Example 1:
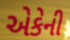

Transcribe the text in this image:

એકેની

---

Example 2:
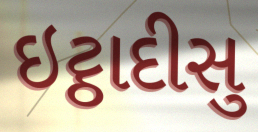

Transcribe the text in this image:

ઇટ્ઠાદીસુ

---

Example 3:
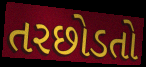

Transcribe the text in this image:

તરછોડતો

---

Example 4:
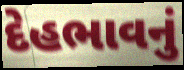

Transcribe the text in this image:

દેહભાવનું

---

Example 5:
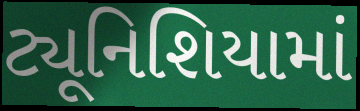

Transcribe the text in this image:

ટ્યૂનિશિયામાં